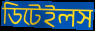
ডিটেইলস